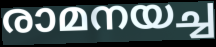
രാമനയച്ച